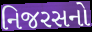
નિજરસનો